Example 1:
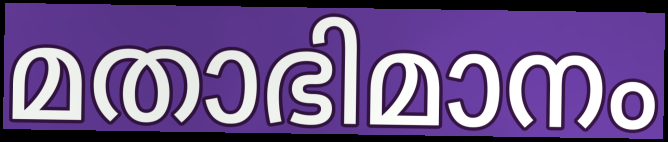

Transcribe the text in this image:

മതാഭിമാനം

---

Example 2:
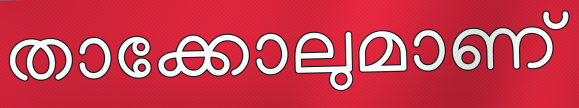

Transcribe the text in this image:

താക്കോലുമാണ്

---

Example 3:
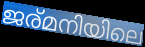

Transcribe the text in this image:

ജര്മനിയിലെ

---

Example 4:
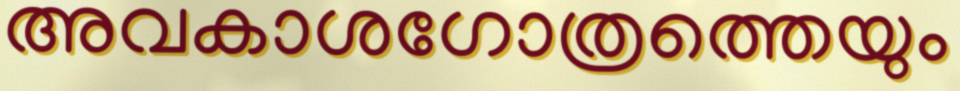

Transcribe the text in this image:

അവകാശഗോത്രത്തെയും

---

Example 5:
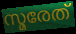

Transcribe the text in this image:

സ്മരേത്